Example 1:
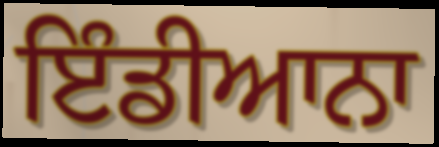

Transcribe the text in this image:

ਇੰਡੀਆਨਾ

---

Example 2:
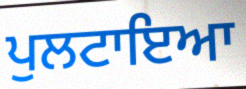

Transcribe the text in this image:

ਪੁਲਟਾਇਆ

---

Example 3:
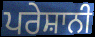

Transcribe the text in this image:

ਪਰੇਸ਼ਾਨੀ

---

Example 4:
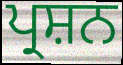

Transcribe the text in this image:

ਪ੍ਰਸ਼ਨ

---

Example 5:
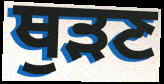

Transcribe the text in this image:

ਥੁੜਣ